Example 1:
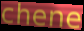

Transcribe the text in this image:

chene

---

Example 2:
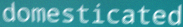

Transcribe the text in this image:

domesticated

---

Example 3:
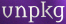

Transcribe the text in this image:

unpkg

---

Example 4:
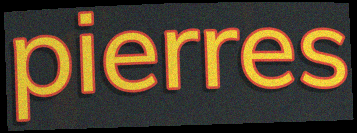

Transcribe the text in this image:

pierres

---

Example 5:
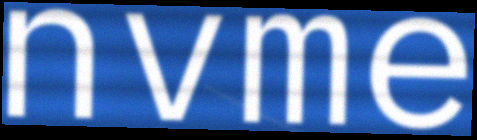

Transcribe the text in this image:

nvme